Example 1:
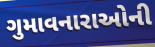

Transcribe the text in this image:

ગુમાવનારાઓની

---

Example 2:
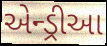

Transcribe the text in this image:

એન્ડ્રીઆ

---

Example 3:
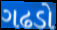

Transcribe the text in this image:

ગઢડો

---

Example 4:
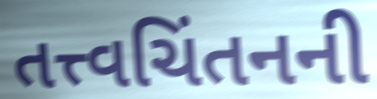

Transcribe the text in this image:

તત્ત્વચિંતનની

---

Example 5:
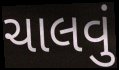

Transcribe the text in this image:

ચાલવું